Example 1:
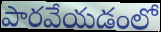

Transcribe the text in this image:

పారవేయడంలో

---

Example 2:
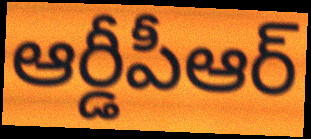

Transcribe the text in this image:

ఆర్డీపీఆర్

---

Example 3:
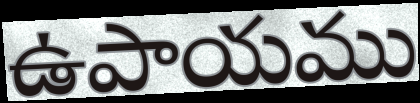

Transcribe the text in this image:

ఉపాయము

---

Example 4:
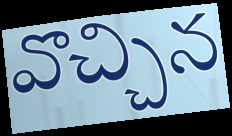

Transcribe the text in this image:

వొచ్చిన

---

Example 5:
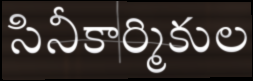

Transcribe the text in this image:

సినీకార్మికుల